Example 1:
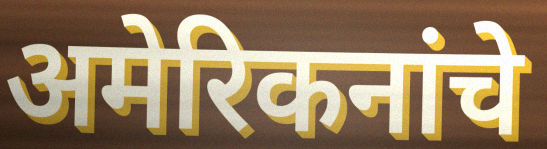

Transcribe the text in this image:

अमेरिकनांचे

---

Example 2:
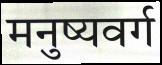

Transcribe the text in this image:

मनुष्यवर्ग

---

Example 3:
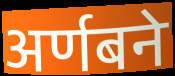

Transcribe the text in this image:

अर्णबने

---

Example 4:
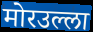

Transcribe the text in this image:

मोरउल्ला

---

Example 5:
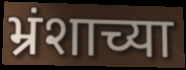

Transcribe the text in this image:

भ्रंशाच्या